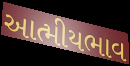
આત્મીયભાવ